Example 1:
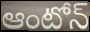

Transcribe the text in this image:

ఆంటోన్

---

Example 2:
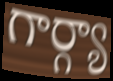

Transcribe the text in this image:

గార్గ్యా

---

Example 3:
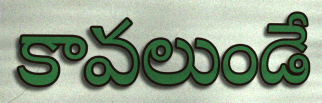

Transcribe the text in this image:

కావలుండే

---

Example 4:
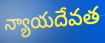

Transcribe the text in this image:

న్యాయదేవత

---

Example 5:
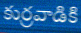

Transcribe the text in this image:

కుర్రవాడికి